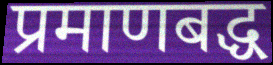
प्रमाणबद्ध